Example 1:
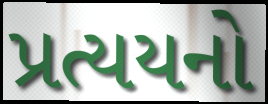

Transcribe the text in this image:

પ્રત્યયનો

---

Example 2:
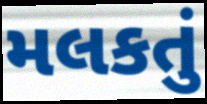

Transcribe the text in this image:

મલકતું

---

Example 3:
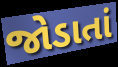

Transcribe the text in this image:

જોડાતાં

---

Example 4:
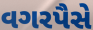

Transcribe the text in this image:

વગરપૈસે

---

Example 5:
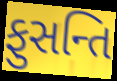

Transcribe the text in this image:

ફુસન્તિ